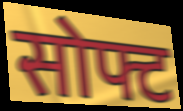
सोफ्ट